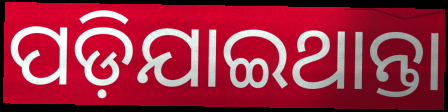
ପଡ଼ିଯାଇଥାନ୍ତା